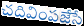
చదివింపజేసే